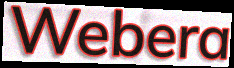
Webera